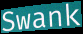
Swank